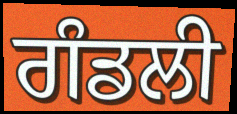
ਗੰਡਲੀ